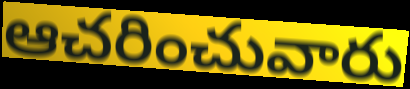
ఆచరించువారు